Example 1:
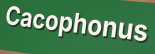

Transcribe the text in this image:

Cacophonus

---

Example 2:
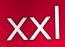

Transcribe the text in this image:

xxl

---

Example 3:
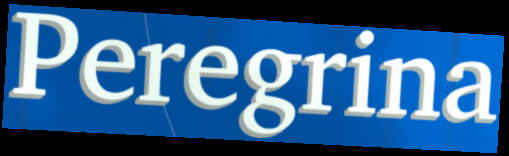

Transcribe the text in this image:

Peregrina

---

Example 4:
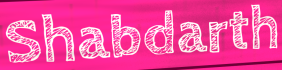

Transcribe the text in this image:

Shabdarth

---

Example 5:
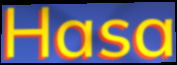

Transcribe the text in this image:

Hasa